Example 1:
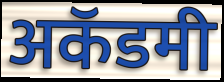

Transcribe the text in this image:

अकॅडमी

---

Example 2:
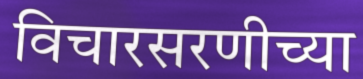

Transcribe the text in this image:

विचारसरणीच्या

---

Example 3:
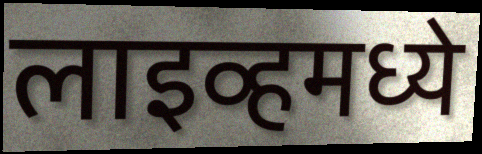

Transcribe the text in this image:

लाइव्हमध्ये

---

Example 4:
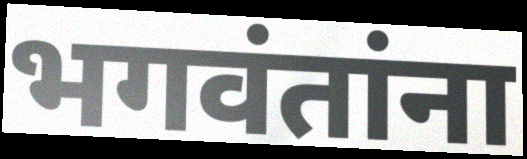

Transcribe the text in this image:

भगवंतांना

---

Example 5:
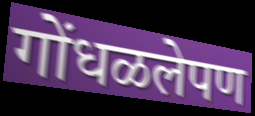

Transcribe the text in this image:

गोंधळलेपण